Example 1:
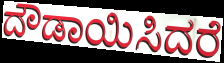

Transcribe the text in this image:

ದೌಡಾಯಿಸಿದರೆ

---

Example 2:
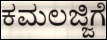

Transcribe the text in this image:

ಕಮಲಜ್ಜಿಗೆ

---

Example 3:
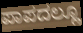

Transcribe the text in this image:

ಪಾಪದಲ್ಲೂ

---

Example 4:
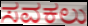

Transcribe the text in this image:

ಸವಕಲು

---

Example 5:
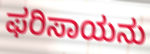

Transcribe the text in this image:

ಫರಿಸಾಯನು